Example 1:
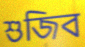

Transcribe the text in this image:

শুজিব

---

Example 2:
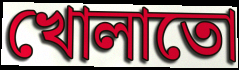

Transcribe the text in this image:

খোলাতো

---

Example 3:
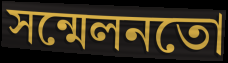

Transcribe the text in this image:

সন্মেলনতো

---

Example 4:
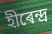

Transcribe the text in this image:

হীৰেন্দ্ৰ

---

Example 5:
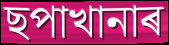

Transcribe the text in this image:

ছপাখানাৰ